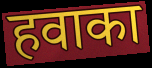
हवाका